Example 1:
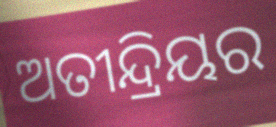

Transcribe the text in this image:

ଅତୀନ୍ଦ୍ରିୟର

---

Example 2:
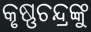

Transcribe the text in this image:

କୃଷ୍ଣଚନ୍ଦ୍ରଙ୍କୁ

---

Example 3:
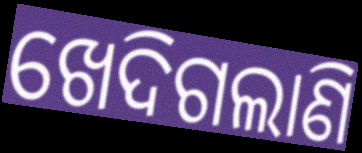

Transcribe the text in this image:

ଖେଦିଗଲାଣି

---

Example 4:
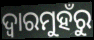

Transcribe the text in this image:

ଦ୍ଵାରମୁହଁରୁ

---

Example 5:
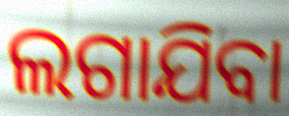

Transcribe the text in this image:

ଲଗାଯିବା